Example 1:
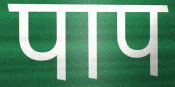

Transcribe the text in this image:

पाप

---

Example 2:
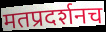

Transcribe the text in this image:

मतप्रदर्शनच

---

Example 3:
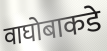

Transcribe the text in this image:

वाघोबाकडे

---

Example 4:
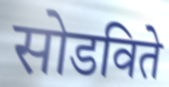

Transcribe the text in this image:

सोडविते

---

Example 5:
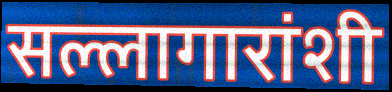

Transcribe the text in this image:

सल्लागारांशी